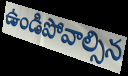
ఉండిపోవాల్సిన